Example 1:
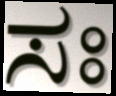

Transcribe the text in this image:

ಸಃ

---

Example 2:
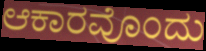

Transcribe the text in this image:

ಆಕಾರವೊಂದು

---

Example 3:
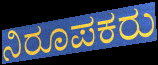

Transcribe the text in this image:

ನಿರೂಪಕರು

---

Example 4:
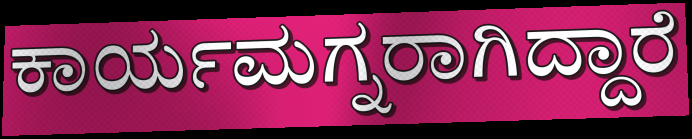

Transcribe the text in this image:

ಕಾರ್ಯಮಗ್ನರಾಗಿದ್ದಾರೆ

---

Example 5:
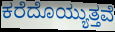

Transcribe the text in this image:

ಕರೆದೊಯ್ಯುತ್ತವೆ